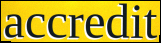
accredit